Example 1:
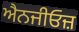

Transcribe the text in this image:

ਐਨਜੀਓਜ਼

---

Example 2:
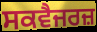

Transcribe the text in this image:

ਸਕਵੈਜਰਜ਼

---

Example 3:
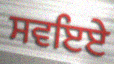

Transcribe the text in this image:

ਸਵਇਏ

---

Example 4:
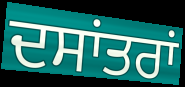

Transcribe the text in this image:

ਦਸਾਂਤਰਾਂ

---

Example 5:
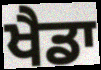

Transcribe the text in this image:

ਖੈਡਾ